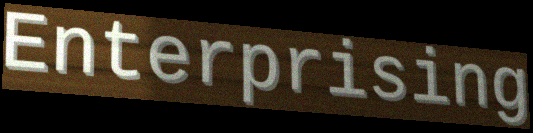
Enterprising